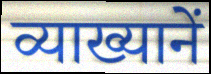
व्याख्यानें